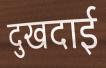
दुखदाई